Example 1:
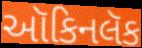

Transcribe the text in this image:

ઑકિનલૅક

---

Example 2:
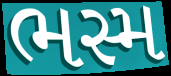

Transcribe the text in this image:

ભસ્મ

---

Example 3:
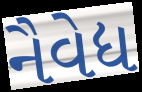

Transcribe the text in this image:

નૈવેદ્ય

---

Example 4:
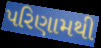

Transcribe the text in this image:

પરિણામથી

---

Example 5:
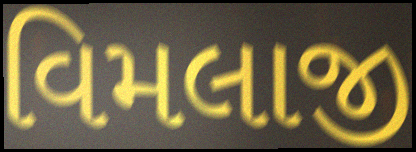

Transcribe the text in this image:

વિમલાજી